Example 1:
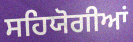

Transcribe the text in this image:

ਸਹਿਯੋਗੀਆਂ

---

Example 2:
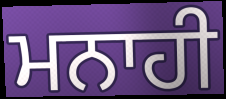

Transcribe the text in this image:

ਮਨਾਹੀ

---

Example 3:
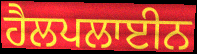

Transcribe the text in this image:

ਹੈਲਪਲਾਈਨ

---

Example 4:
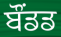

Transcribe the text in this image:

ਬੌਂਡਡ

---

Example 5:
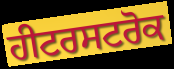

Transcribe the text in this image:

ਹੀਟਰਸਟਰੋਕ